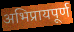
अभिप्रायपूर्ण